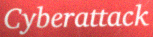
Cyberattack